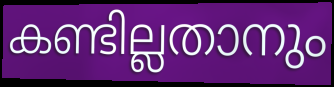
കണ്ടില്ലതാനും